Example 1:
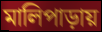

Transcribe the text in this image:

মালিপাড়ায়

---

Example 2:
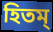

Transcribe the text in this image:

হিতম্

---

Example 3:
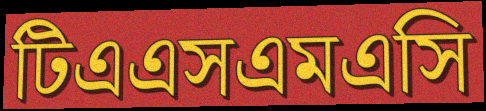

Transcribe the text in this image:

টিএএসএমএসি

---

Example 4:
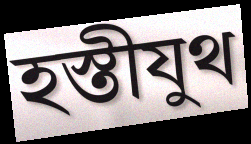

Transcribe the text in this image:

হস্তীযুথ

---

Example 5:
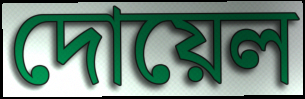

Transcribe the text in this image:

দোয়েল